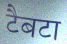
टैबटा